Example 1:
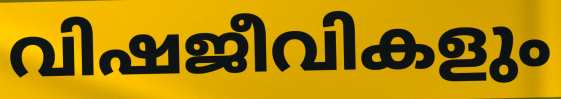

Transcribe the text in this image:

വിഷജീവികളും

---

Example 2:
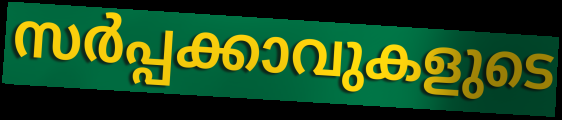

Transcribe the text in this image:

സർപ്പക്കാവുകളുടെ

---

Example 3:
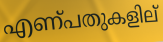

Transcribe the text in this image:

എണ്പതുകളില്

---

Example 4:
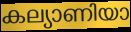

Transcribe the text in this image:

കല്യാണിയാ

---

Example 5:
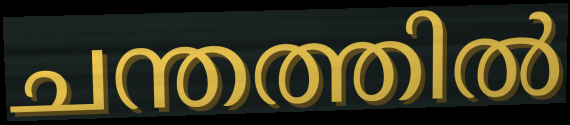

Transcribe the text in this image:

ചന്തത്തിൽ